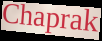
Chaprak